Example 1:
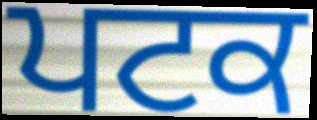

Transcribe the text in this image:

ਪਟਕ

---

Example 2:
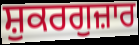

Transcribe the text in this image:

ਸ਼ੁਕਰਗੁਜ਼ਾਰ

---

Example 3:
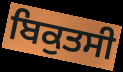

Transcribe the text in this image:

ਬਿਕੁਤਸੀ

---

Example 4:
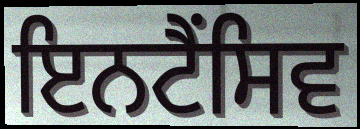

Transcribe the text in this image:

ਇਨਟੈਂਸਿਵ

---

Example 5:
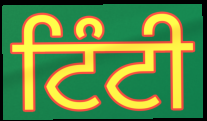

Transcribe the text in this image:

ਟਿੰਟੀ